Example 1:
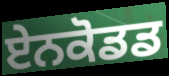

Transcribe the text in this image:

ਏਨਕੋਡਡ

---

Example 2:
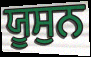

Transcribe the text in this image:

ਯੂਸੁਨ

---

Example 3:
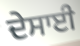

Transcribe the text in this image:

ਦੇਸਾਈ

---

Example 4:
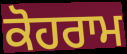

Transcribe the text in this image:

ਕੋਹਰਾਮ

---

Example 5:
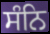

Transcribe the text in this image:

ਸੰਨਿ